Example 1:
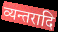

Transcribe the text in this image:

व्यन्तरादि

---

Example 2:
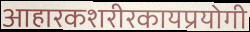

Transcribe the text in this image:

आहारकशरीरकायप्रयोगी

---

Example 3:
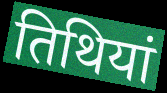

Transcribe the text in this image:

तिथियां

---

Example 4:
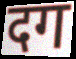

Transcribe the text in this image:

दग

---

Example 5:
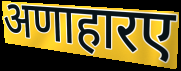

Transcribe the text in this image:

अणाहारए